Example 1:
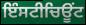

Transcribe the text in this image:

ਇੰਸਟੀਚਿਊਂਟ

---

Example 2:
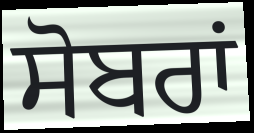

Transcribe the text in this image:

ਸੋਬਰਾਂ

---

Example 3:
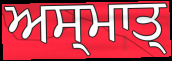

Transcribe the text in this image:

ਅਸ੍ਮਾਤ੍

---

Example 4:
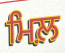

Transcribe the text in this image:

ਮਿਲ਼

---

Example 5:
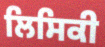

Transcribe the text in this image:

ਲਿਸਿਕੀ